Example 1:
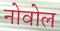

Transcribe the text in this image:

नोवोल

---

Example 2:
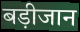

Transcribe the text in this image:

बड़ीजान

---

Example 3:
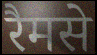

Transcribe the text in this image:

रैमसे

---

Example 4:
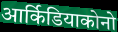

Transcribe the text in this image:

आर्किडियाकोनो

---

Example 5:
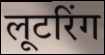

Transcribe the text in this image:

लूटरिंग